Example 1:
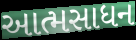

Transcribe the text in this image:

આત્મસાધન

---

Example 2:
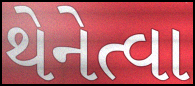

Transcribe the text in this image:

થેનેત્વા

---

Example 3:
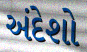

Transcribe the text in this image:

અંદેશો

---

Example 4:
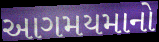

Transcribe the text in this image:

આગમયમાનો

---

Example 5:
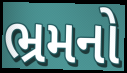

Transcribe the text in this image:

ભ્રમનો